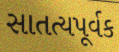
સાતત્યપૂર્વક